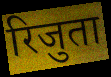
रिजुता